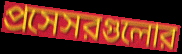
প্রসেসরগুলোর